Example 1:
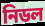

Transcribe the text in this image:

নিডল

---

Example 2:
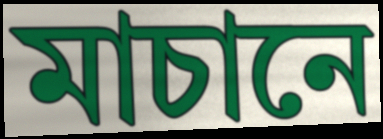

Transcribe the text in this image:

মাচানে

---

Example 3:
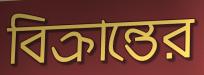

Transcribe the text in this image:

বিক্রান্তের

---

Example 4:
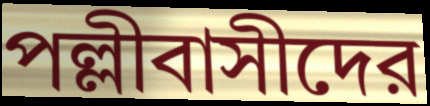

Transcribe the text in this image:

পল্লীবাসীদের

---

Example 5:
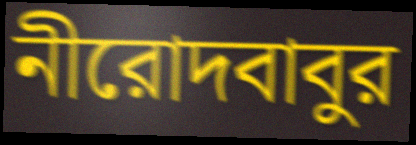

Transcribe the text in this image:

নীরোদবাবুর